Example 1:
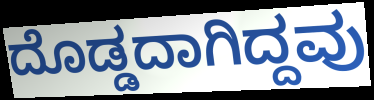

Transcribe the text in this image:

ದೊಡ್ಡದಾಗಿದ್ದವು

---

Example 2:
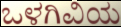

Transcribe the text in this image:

ಒಳಗಿವಿಯ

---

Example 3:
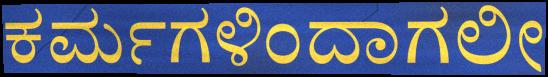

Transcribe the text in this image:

ಕರ್ಮಗಳಿಂದಾಗಲೀ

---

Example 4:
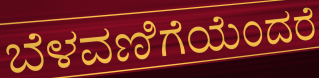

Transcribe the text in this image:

ಬೆಳವಣಿಗೆಯೆಂದರೆ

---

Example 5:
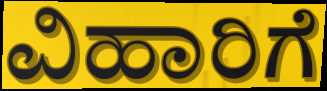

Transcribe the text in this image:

ವಿಹಾರಿಗೆ